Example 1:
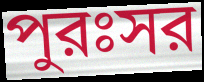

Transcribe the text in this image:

পুরঃসর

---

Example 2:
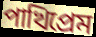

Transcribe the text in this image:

পাখিপ্রেম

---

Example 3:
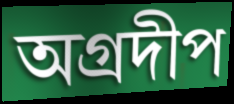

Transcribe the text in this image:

অগ্রদীপ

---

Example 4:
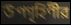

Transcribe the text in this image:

উপগৃহিণীর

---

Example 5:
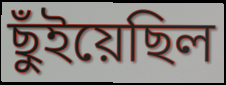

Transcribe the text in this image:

ছুঁইয়েছিল